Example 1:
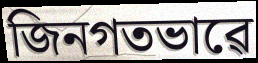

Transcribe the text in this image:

জিনগতভাৱে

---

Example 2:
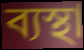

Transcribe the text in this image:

ব্যস্থা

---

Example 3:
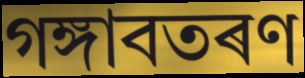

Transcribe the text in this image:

গঙ্গাবতৰণ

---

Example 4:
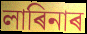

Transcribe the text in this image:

লাৰিনাৰ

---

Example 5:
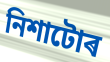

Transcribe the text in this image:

নিশাটোৰ